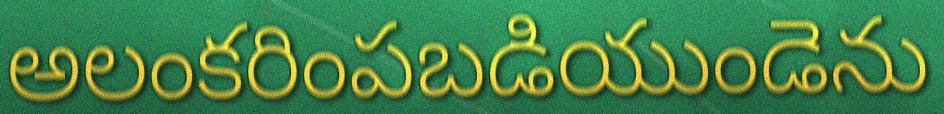
అలంకరింపబడియుండెను